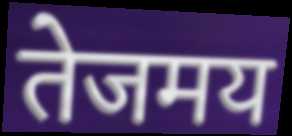
तेजमय